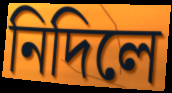
নিদিলে